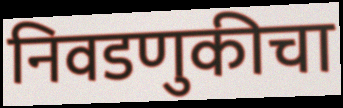
निवडणुकीचा